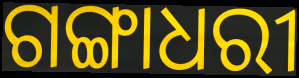
ଗଙ୍ଗାଧରୀ